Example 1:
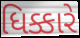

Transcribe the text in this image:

ધિક્કારે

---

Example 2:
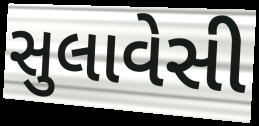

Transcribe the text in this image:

સુલાવેસી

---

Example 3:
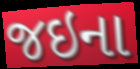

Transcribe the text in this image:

જઇના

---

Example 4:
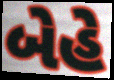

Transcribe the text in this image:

બેહે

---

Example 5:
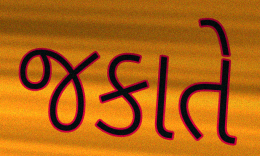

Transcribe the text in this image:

જકાતે